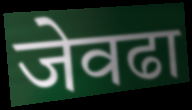
जेवढा